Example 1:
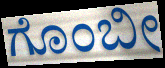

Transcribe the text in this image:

ಗೊಂಬೀ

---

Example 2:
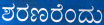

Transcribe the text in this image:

ಶರಣರೆಂದು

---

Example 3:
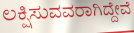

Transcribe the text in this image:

ಲಕ್ಷಿಸುವವರಾಗಿದ್ದೇವೆ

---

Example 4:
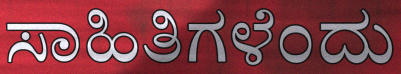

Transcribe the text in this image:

ಸಾಹಿತಿಗಳೆಂದು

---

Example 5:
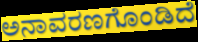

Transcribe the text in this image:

ಅನಾವರಣಗೊಂಡಿದೆ